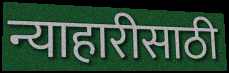
न्याहारीसाठी